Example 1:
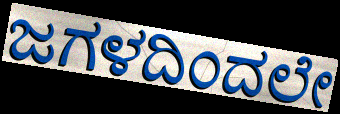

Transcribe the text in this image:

ಜಗಳದಿಂದಲೇ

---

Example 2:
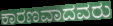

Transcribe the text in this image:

ಕಾರಣವಾದವರು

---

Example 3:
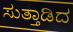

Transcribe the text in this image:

ಸುತ್ತಾಡಿದ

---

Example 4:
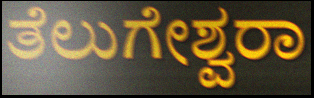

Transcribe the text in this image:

ತೆಲುಗೇಶ್ವರಾ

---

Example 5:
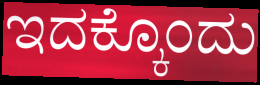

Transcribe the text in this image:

ಇದಕ್ಕೊಂದು